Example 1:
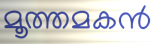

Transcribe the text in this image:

മൂത്തമകൻ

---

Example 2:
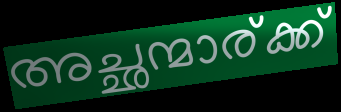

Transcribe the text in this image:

അച്ഛന്മാര്ക്ക്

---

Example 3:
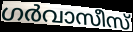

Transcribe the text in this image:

ഗർവാസീസ്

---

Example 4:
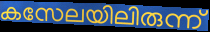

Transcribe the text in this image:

കസേലയിലിരുന്ന്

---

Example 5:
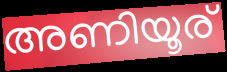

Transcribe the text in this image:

അണിയൂര്